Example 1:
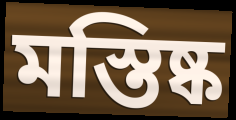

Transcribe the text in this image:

মস্তিষ্ক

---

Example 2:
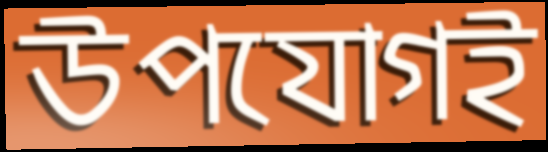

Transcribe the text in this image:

উপযোগই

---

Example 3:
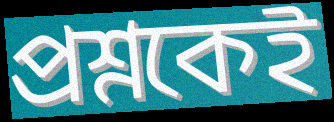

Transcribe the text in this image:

প্রশ্নকেই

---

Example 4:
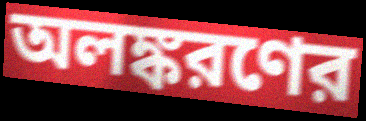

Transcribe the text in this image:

অলঙ্করণের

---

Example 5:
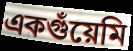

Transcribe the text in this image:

একগুঁয়েমি